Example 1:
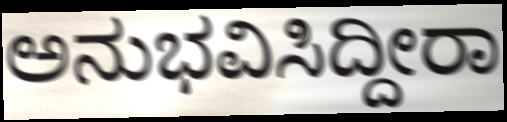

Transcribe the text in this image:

ಅನುಭವಿಸಿದ್ದೀರಾ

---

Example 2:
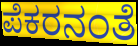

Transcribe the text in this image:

ಪೆಕರನಂತೆ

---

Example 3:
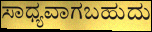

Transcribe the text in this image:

ಸಾಧ್ಯವಾಗಬಹುದು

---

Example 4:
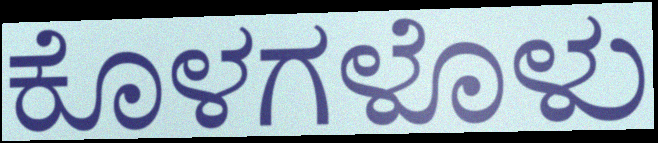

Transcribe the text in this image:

ಕೊಳಗಳೊಳು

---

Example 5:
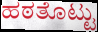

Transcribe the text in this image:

ಹಠತೊಟ್ಟು